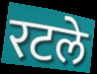
रटले